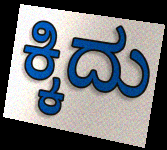
ಕ್ಕಿದು